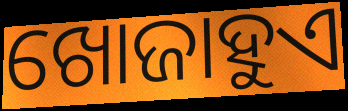
ଖୋଜାହୁଏ